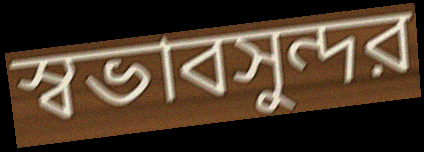
স্বভাবসুন্দর